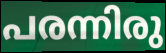
പരന്നിരു